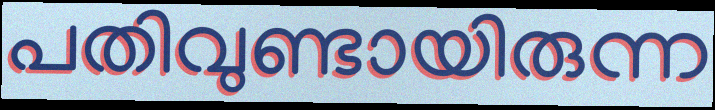
പതിവുണ്ടായിരുന്ന